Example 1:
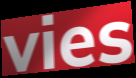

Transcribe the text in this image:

vies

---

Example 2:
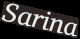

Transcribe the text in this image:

Sarina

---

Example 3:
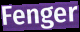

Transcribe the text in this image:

Fenger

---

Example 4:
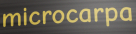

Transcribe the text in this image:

microcarpa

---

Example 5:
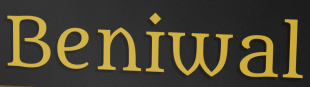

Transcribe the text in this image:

Beniwal